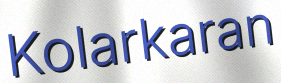
Kolarkaran